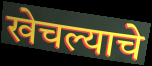
खेचल्याचे